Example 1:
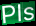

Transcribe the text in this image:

Pls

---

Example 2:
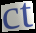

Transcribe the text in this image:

ct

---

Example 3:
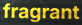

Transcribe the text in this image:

fragrant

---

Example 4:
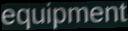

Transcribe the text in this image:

equipment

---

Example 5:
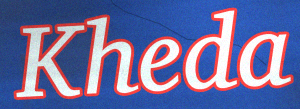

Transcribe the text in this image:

Kheda